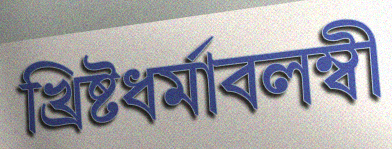
খ্রিষ্টধর্মাবলম্বী